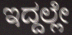
ಇದ್ದಲ್ಲೇ